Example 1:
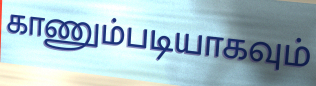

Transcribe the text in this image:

காணும்படியாகவும்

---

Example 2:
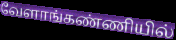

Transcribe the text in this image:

வேளாங்கண்ணியில்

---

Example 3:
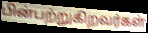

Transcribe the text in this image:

பின்பற்றுகிறவர்கள்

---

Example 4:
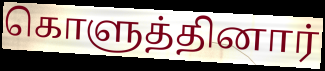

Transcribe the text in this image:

கொளுத்தினார்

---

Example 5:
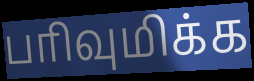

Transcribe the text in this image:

பரிவுமிக்க